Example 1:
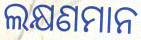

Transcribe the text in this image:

ଲକ୍ଷଣମାନ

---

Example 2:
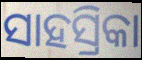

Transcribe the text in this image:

ସାହସ୍ରିକା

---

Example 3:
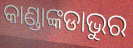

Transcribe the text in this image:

କାଣ୍ଡାଙ୍କଡାଭୁର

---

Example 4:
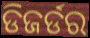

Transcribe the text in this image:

ଡିଜର୍ଡର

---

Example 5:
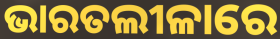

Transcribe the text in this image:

ଭାରତଲୀଳାରେ